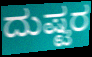
ದುಷ್ಟರ